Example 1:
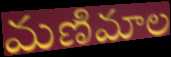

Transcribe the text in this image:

మణిమాల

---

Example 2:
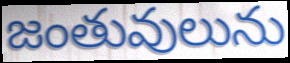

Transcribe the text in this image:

జంతువులును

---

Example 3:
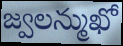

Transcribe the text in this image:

జ్వలన్ముఖో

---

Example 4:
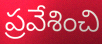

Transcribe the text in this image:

ప్రవేశించి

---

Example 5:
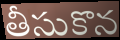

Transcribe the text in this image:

తీసుకొన